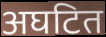
अघटित